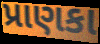
પ્રાણકા